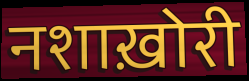
नशाख़ोरी